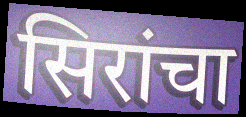
सिरांचा